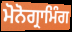
ਮੋਨੋਗ੍ਰਾਮਿੰਗ